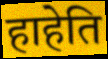
हाहेति